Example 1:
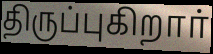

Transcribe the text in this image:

திருப்புகிறார்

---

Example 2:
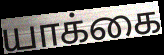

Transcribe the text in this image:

யாக்கை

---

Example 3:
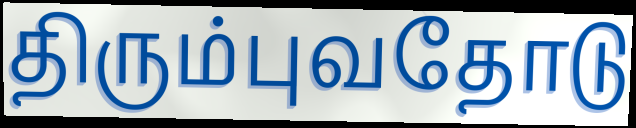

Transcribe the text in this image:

திரும்புவதோடு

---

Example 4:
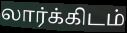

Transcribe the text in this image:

லார்க்கிடம்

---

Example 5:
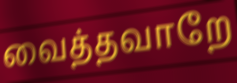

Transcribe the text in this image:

வைத்தவாறே